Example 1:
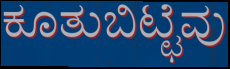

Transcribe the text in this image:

ಕೂತುಬಿಟ್ಟೆವು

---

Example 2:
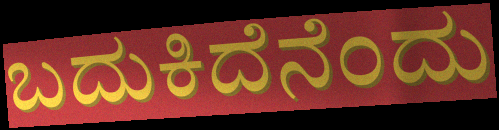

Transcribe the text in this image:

ಬದುಕಿದೆನೆಂದು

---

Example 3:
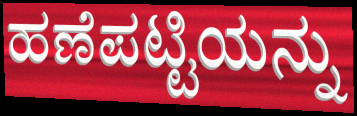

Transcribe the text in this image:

ಹಣೆಪಟ್ಟಿಯನ್ನು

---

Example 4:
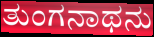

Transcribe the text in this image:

ತುಂಗನಾಥನು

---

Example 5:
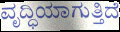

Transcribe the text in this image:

ವೃದ್ಧಿಯಾಗುತ್ತಿದೆ